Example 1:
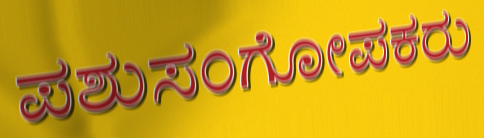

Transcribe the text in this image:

ಪಶುಸಂಗೋಪಕರು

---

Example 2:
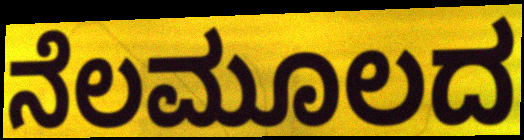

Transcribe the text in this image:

ನೆಲಮೂಲದ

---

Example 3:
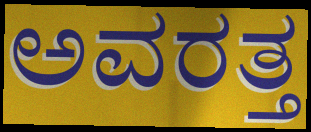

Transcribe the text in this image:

ಅವರತ್ತ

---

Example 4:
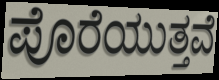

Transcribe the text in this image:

ಪೊರೆಯುತ್ತವೆ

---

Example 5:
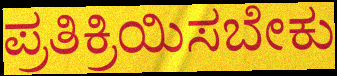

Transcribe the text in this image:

ಪ್ರತಿಕ್ರಿಯಿಸಬೇಕು